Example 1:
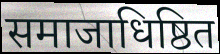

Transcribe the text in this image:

समाजाधिष्ठित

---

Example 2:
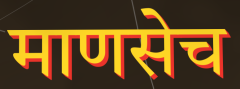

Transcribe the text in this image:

माणसेच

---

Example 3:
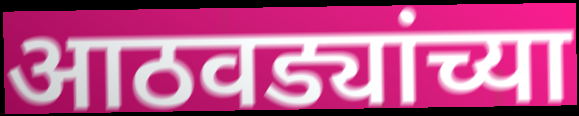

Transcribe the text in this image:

आठवड्यांच्या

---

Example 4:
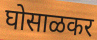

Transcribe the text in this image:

घोसाळकर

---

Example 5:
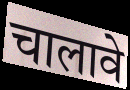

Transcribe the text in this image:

चालावे